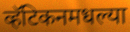
व्हॅटिकनमधल्या